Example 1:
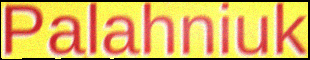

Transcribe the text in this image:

Palahniuk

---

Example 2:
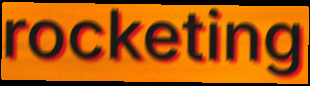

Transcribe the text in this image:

rocketing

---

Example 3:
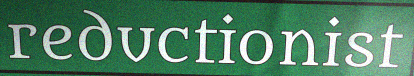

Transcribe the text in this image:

reductionist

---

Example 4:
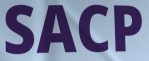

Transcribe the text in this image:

SACP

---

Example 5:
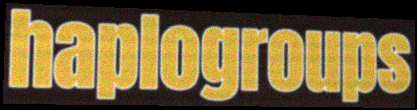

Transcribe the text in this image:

haplogroups